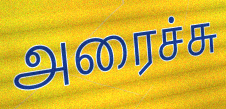
அரைச்சு